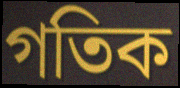
গতিক